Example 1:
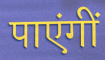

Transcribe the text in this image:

पाएंगीं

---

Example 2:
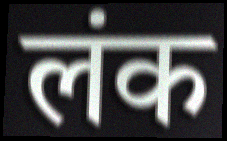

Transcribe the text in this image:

लंक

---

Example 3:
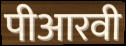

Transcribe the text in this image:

पीआरवी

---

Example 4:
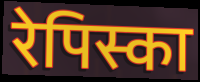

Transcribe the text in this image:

रेपिस्का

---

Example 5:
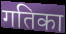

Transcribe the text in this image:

गतिका